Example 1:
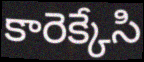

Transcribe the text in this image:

కారెక్కేసి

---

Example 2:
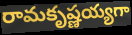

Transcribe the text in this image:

రామకృష్ణయ్యగా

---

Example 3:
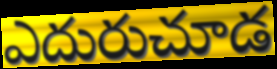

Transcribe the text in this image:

ఎదురుచూడ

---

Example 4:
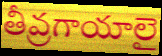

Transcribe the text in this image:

తీవ్రగాయాలై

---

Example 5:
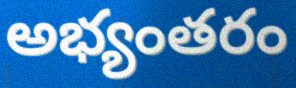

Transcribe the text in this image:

అభ్యంతరం